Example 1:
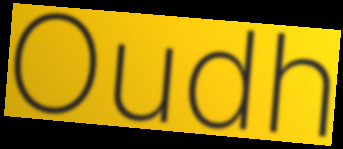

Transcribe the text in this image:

Oudh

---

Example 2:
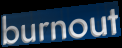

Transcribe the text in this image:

burnout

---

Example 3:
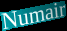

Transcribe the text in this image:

Numair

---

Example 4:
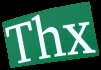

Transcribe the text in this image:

Thx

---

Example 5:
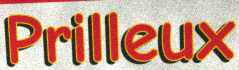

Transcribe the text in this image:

Prilleux